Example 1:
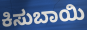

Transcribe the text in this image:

ಕಿಸುಬಾಯಿ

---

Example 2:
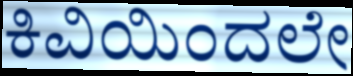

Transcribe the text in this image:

ಕಿವಿಯಿಂದಲೇ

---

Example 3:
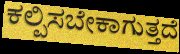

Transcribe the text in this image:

ಕಲ್ಪಿಸಬೇಕಾಗುತ್ತದೆ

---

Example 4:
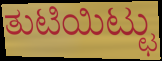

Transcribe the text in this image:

ತುಟಿಯಿಟ್ಟು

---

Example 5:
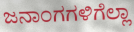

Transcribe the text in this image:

ಜನಾಂಗಗಳಿಗೆಲ್ಲಾ